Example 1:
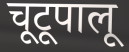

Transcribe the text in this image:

चूटूपालू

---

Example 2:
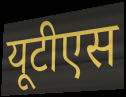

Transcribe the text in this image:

यूटीएस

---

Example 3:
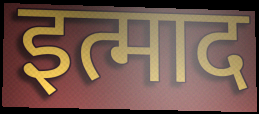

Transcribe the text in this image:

इत्माद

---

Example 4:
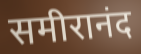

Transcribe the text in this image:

समीरानंद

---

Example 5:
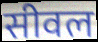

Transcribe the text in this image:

सीवल